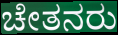
ಚೇತನರು